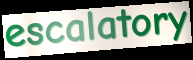
escalatory